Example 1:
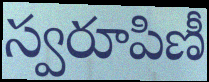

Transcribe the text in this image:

స్వరూపిణీ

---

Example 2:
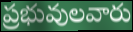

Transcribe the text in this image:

ప్రభువులవారు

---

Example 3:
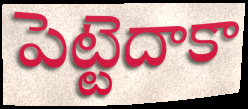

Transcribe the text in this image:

పెట్టెదాకా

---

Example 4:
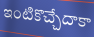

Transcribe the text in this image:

ఇంటికొచ్చేదాకా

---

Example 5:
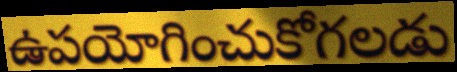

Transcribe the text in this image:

ఉపయోగించుకోగలడు